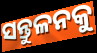
ସନ୍ତୁଳନକୁ